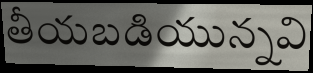
తీయబడియున్నవి